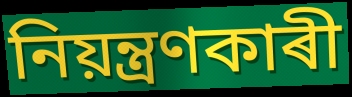
নিয়ন্ত্ৰণকাৰী